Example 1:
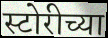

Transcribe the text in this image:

स्टोरीच्या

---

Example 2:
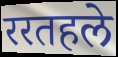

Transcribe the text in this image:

ररतहले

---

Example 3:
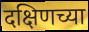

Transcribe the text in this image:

दक्षिणच्या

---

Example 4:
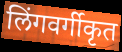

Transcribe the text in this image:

लिंगवर्गीकृत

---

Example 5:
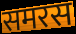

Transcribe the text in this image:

समरस